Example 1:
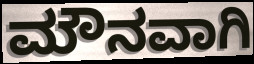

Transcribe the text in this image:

ಮೌನವಾಗಿ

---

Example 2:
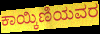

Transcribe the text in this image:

ಕಾಯ್ಕಿಣಿಯವರ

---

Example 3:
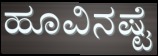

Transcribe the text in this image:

ಹೂವಿನಷ್ಟೆ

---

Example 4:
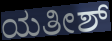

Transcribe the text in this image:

ಯತೀಶ್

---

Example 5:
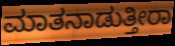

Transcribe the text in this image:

ಮಾತನಾಡುತ್ತೀರಾ